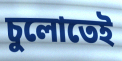
চুলোতেই